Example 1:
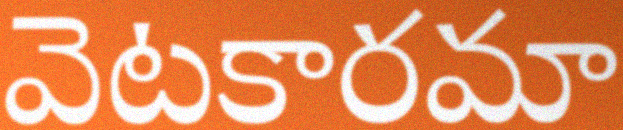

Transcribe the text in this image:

వెటకారమా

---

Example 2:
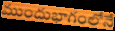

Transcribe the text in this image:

ముందుభాగంలోనే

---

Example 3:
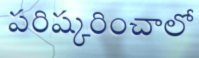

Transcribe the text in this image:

పరిష్కరించాలో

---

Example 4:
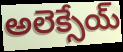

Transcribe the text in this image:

అలెక్సేయ్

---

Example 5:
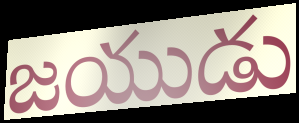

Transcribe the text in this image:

జయుడు